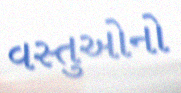
વસ્તુઓનો